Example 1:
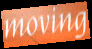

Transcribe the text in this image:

moving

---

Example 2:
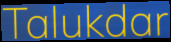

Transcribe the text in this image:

Talukdar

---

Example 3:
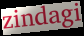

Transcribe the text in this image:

zindagi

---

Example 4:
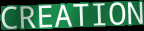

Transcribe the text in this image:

CREATION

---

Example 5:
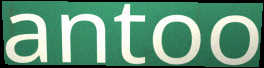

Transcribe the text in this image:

antoo